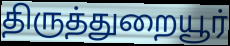
திருத்துறையூர்